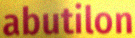
abutilon